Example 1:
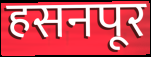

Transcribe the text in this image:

हसनपूर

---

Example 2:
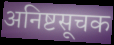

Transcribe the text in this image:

अनिष्टसूचक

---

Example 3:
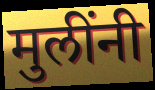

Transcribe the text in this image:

मुलींनी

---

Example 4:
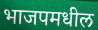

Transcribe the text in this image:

भाजपमधील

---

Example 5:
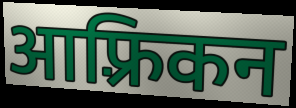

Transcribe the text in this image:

आफ़्रिकन